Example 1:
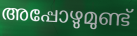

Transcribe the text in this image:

അപ്പോഴുമുണ്ട്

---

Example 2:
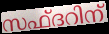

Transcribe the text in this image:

സഫ്ദറിന്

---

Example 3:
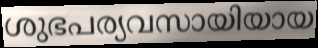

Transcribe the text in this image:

ശുഭപര്യവസായിയായ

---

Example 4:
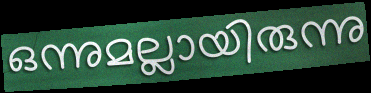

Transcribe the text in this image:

ഒന്നുമല്ലായിരുന്നു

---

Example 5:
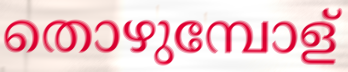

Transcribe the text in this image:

തൊഴുമ്പോള്